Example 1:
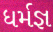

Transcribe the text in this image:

ધર્મજ્ઞ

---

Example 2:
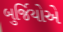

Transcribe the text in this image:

બુર્જિયોએ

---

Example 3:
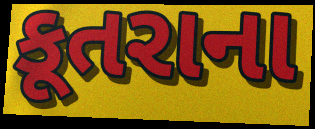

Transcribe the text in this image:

કૂતરાના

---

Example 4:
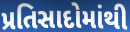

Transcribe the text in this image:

પ્રતિસાદોમાંથી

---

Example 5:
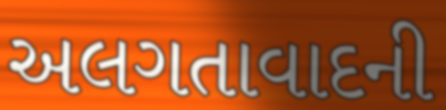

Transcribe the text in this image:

અલગતાવાદની